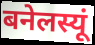
बनेलस्यूं